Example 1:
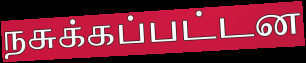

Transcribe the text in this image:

நசுக்கப்பட்டன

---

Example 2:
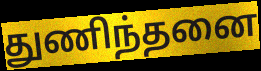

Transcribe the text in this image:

துணிந்தனை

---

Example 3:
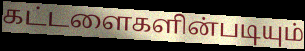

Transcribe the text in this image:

கட்டளைகளின்படியும்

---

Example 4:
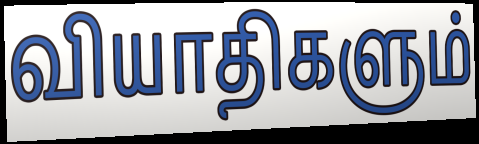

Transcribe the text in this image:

வியாதிகளும்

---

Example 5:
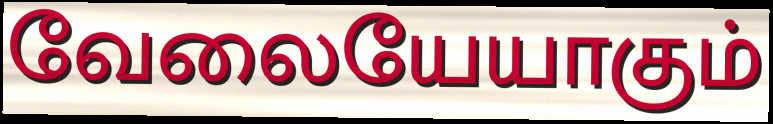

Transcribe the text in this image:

வேலையேயாகும்